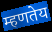
म्हणतेय